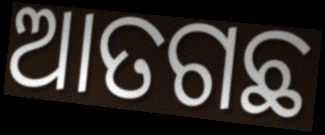
ଆତଗଛ